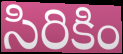
సిరికిం